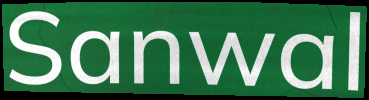
Sanwal